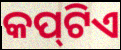
କପ୍‍ଟିଏ